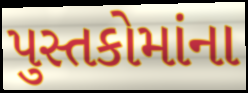
પુસ્તકોમાંના